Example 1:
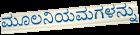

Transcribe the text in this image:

ಮೂಲನಿಯಮಗಳನ್ನು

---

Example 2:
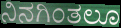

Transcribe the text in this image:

ನಿನಗಿಂತಲೂ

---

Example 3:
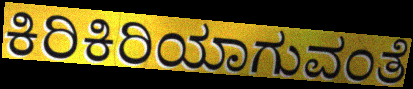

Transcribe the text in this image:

ಕಿರಿಕಿರಿಯಾಗುವಂತೆ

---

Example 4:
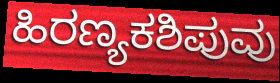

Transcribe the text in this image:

ಹಿರಣ್ಯಕಶಿಪುವು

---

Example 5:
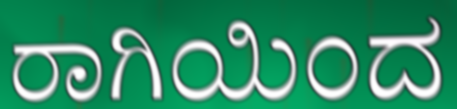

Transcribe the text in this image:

ರಾಗಿಯಿಂದ